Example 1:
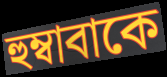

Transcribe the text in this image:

হুম্বাবাকে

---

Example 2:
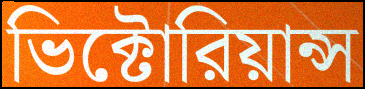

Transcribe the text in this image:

ভিক্টোরিয়ান্স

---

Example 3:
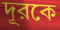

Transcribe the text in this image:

দূরকে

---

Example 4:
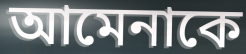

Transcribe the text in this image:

আমেনাকে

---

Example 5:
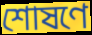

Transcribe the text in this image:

শোষণে